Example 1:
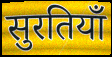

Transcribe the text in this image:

सुरतियाँ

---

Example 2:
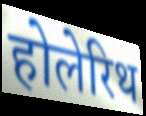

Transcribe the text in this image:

होलेरिथ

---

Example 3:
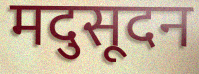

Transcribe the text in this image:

मदुसूदन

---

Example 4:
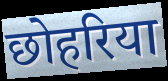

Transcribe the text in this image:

छोहरिया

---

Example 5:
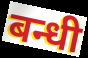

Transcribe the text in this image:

बन्धी